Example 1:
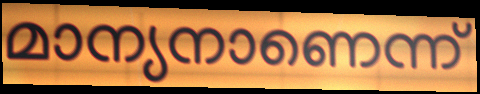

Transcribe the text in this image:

മാന്യനാണെന്ന്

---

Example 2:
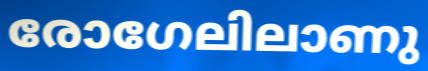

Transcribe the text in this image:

രോഗേലിലാണു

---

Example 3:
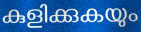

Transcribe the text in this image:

കുളിക്കുകയും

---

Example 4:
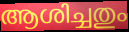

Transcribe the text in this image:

ആശിച്ചതും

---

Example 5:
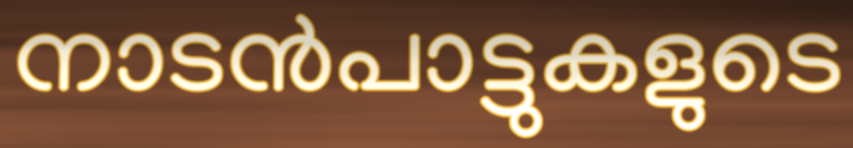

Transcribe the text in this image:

നാടൻപാട്ടുകളുടെ